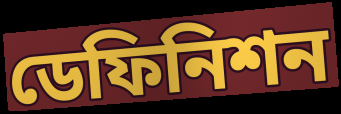
ডেফিনিশন